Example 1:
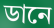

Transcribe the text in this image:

ডানে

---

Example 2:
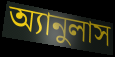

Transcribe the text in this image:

অ্যানুলাস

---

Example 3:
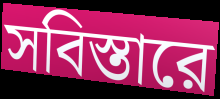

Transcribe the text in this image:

সবিস্তারে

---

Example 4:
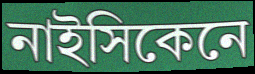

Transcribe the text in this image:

নাইসিকেনে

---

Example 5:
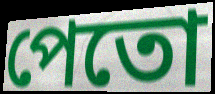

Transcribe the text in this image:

পেতো